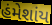
હંમેશાંય